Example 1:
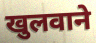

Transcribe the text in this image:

खुलवाने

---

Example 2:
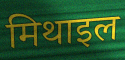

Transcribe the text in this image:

मिथाइल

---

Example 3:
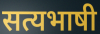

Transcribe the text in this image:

सत्यभाषी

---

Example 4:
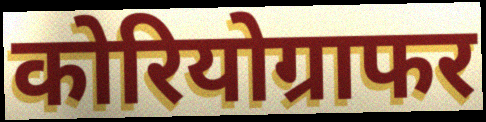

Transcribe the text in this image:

कोरियोग्राफर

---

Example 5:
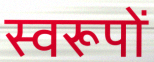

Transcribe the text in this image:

स्वरूपों